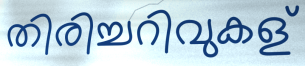
തിരിച്ചറിവുകള്